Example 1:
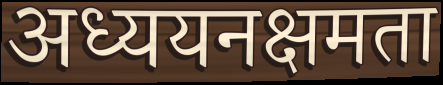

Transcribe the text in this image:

अध्ययनक्षमता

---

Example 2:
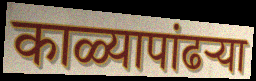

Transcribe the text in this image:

काळ्यापांढर्‍या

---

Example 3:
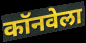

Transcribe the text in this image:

कॉनवेला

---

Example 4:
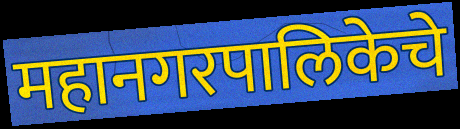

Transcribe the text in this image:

महानगरपालिकेचे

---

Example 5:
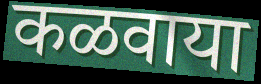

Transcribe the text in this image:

कळवाया